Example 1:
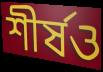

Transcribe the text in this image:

শীর্ষও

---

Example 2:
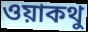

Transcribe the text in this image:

ওয়াকথু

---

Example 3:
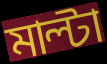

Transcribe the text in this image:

মাল্টা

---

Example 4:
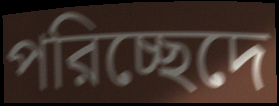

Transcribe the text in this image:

পরিচ্ছেদে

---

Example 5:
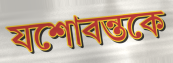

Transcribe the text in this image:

যশোবন্তকে